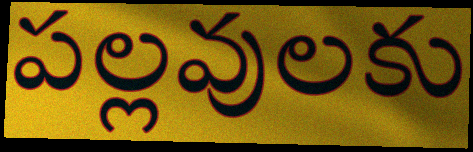
పల్లవులకు